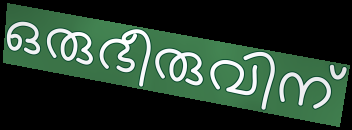
ഒരുഭീരുവിന്